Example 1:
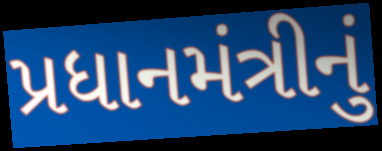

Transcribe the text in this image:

પ્રધાનમંત્રીનું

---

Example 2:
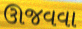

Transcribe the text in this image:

ઊજવવા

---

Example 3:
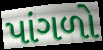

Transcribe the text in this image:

પાંગળો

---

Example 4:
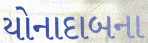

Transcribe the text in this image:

યોનાદાબના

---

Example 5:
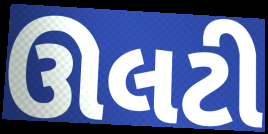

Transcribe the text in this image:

ઊલટી